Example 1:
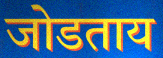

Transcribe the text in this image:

जोडताय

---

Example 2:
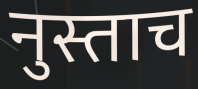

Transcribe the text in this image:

नुस्ताच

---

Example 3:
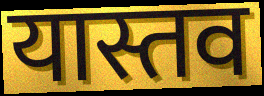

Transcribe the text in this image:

यास्तव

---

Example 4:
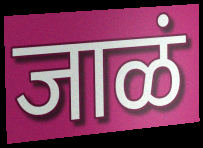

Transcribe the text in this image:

जाळं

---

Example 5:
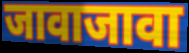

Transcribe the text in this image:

जावाजावा